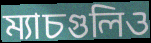
ম্যাচগুলিও